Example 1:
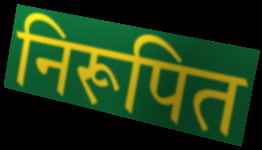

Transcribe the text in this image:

निरूपित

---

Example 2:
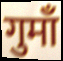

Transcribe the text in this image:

गुमाँ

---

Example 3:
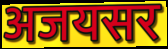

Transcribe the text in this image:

अजयसर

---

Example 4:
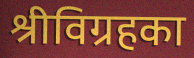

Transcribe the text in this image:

श्रीविग्रहका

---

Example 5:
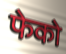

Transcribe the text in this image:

फेको